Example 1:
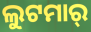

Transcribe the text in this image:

ଲୁଟମାର୍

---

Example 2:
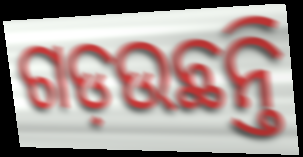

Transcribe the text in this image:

ଗଡ଼ଉଛନ୍ତି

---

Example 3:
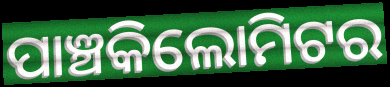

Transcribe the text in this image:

ପାଞ୍ଚକିଲୋମିଟର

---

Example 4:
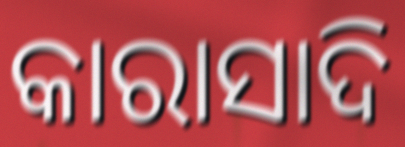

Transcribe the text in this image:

କାରାସାଦି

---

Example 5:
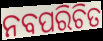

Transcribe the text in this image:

ନବପରିଚିତ